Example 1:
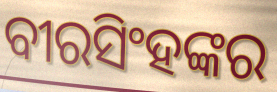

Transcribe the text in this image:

ବୀରସିଂହଙ୍କର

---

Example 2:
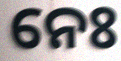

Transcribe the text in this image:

ନେଃ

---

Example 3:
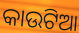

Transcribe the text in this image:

କାଉଟିଆ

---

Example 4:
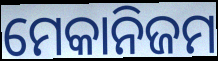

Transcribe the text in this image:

ମେକାନିଜମ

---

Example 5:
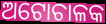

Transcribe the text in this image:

ଅଟୋଚାଳକ